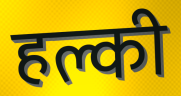
हल्की